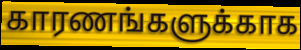
காரணங்களுக்காக